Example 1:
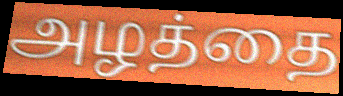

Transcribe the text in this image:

அழத்தை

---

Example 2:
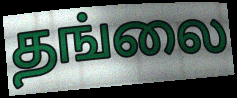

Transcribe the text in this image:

தங்லை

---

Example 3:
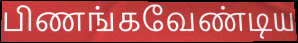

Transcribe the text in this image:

பிணங்கவேண்டிய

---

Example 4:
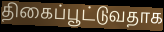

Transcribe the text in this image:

திகைப்பூட்டுவதாக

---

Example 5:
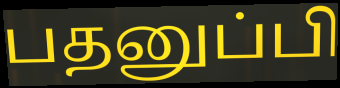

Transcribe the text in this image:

பதனுப்பி